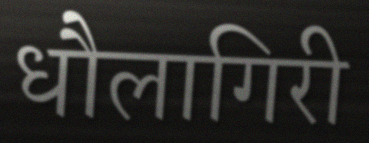
धौलागिरी